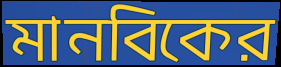
মানবিকের